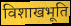
विशाखभूति